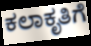
ಕಲಾಕೃತಿಗೆ